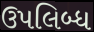
ઉપલિબ્ધ